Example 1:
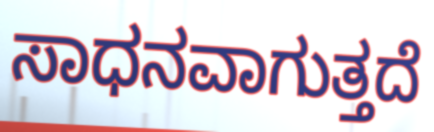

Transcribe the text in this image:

ಸಾಧನವಾಗುತ್ತದೆ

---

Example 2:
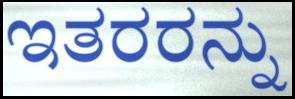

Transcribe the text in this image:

ಇತರರನ್ನು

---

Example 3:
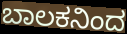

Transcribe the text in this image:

ಬಾಲಕನಿಂದ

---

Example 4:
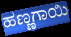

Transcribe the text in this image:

ಹಣ್ಣಗಾಯಿ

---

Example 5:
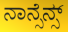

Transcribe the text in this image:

ನಾನ್ಸೆನ್ಸ್